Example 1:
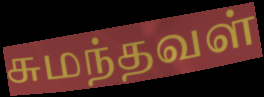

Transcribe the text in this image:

சுமந்தவள்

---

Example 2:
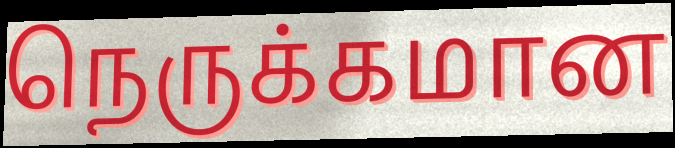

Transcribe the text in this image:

நெருக்கமான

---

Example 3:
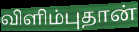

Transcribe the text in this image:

விளிம்புதான்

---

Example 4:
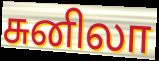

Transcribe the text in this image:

சுனிலா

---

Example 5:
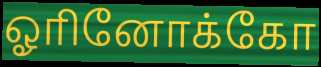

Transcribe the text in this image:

ஓரினோக்கோ